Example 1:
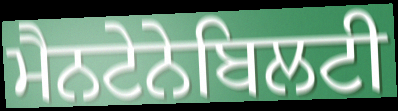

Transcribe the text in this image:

ਮੈਨਟੇਨੇਬਿਲਟੀ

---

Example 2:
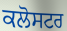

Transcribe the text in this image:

ਕਲੋਸਟਰ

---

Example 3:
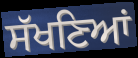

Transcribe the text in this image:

ਸੱਖਣਿਆਂ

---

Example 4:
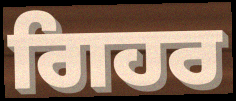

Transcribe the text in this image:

ਗਿਹਰ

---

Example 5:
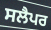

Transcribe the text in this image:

ਸਲੈਪਰ